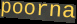
poorna